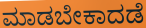
ಮಾಡಬೇಕಾದಡೆ